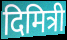
दिमित्री